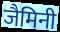
जैमिनी